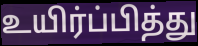
உயிர்ப்பித்து